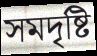
সমদৃষ্টি